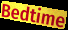
Bedtime